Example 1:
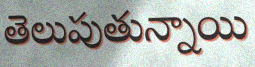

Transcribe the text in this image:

తెలుపుతున్నాయి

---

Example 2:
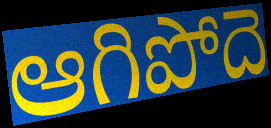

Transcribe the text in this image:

ఆగిపోదె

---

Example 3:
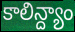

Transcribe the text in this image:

కాలిన్ద్యాం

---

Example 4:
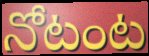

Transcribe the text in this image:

నోటంట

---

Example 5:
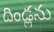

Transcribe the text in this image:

దిండ్లను